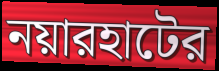
নয়ারহাটের